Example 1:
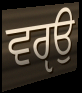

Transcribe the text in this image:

ਵਰੵਉ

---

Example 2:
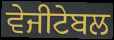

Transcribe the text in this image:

ਵੇਜੀਟੇਬਲ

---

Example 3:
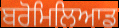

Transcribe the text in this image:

ਬਰੋਮਿਲਿਆਡ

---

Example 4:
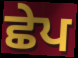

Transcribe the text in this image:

ਛੇਪ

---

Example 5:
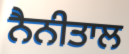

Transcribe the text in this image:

ਨੈਨੀਤਾਲ